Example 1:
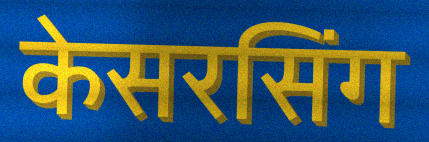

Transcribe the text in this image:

केसरसिंग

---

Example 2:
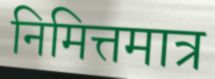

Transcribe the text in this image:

निमित्तमात्र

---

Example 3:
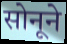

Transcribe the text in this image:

सोनूने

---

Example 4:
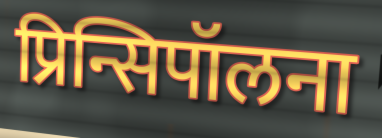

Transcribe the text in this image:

प्रिन्सिपॉलना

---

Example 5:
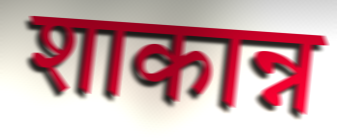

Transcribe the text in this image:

शाकान्न